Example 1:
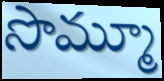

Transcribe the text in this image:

సొమ్మూ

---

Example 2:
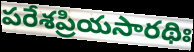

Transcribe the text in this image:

పరేశప్రియసారథిః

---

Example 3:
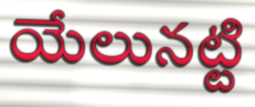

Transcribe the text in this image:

యేలునట్టి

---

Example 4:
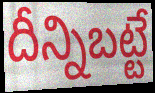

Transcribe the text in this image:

దీన్నిబట్టే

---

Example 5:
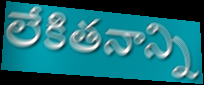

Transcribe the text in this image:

లేకితనాన్ని